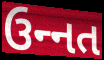
ઉન્‍નત